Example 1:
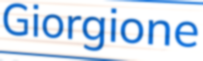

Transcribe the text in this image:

Giorgione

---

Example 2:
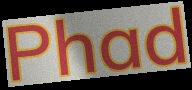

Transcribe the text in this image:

Phad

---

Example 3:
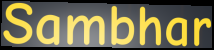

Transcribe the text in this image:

Sambhar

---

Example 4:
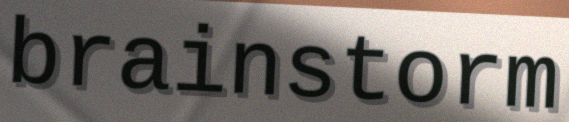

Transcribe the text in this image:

brainstorm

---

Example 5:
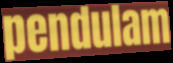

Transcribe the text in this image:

pendulam